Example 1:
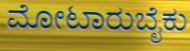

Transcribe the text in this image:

ಮೋಟಾರುಬೈಕು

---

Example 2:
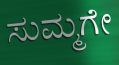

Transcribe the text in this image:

ಸುಮ್ಮಗೇ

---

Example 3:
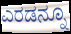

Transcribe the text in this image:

ಎರಡನ್ನೂ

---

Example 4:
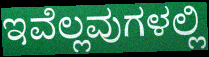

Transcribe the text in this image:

ಇವೆಲ್ಲವುಗಳಲ್ಲಿ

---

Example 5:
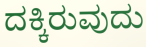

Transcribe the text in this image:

ದಕ್ಕಿರುವುದು